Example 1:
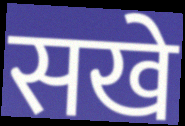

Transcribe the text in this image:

सखे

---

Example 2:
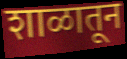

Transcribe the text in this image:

शाळातून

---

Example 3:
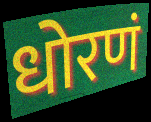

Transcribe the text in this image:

धोरणं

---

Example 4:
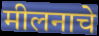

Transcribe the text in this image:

मीलनाचे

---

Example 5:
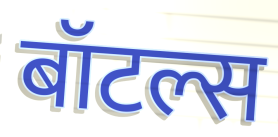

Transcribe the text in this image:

बॉटल्स